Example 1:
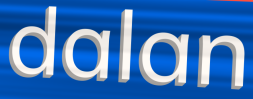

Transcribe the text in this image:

dalan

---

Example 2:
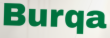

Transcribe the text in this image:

Burqa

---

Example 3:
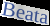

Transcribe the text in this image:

Beata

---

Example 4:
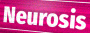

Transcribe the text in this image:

Neurosis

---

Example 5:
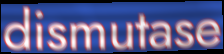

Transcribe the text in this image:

dismutase